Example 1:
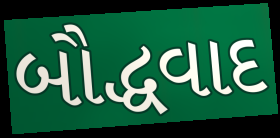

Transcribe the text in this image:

બૌદ્ધવાદ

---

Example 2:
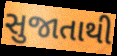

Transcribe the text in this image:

સુજાતાથી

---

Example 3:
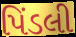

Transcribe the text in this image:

પિંડલી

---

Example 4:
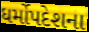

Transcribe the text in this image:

ધર્મોપદેશના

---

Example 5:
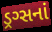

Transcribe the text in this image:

ડ્રગ્સનાં